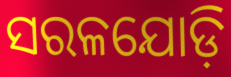
ସରଳଯୋଡ଼ି